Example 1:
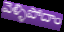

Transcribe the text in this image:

వెళ్ళిపోదాం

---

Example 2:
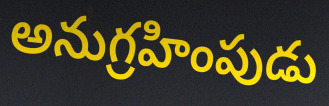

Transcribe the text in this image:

అనుగ్రహింపుడు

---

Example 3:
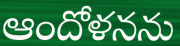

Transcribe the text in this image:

ఆందోళనను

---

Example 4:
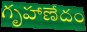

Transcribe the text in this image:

గృహాణేదం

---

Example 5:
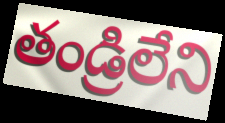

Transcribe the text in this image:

తండ్రిలేని